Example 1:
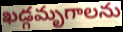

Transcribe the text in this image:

ఖడ్గమృగాలను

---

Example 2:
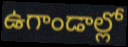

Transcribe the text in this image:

ఉగాండాల్లో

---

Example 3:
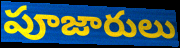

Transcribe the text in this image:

పూజారులు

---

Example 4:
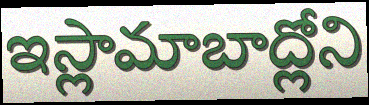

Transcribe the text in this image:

ఇస్లామాబాద్లోని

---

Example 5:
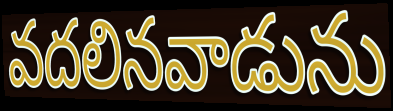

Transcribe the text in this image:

వదలినవాడును